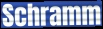
Schramm